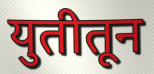
युतीतून